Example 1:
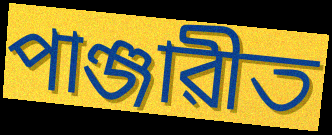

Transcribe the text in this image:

পাঞ্জাৱীত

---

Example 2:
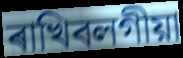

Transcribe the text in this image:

ৰাখিবলগীয়া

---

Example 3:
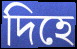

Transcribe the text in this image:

দিহে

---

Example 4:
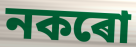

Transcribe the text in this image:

নকৰো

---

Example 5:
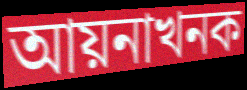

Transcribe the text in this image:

আয়নাখনক